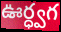
ఊర్ధ్వగ